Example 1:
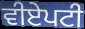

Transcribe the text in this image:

ਵੀਏਪਟੀ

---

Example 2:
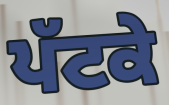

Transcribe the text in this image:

ਪੱਟਕੇ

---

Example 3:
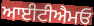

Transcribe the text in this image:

ਆਈਟੀਐਮਓ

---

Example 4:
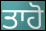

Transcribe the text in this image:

ਤਾਹੋ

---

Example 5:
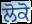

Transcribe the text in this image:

ਲੋਕੋ